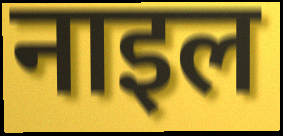
नाइल